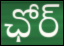
ఛోర్